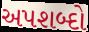
અપશબ્દો